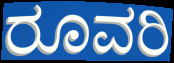
ರೂವರಿ